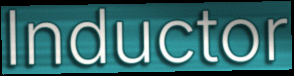
Inductor